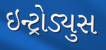
ઇન્ટ્રોડ્યુસ